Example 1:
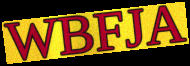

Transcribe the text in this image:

WBFJA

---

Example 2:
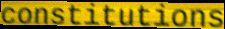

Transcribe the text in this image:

constitutions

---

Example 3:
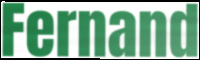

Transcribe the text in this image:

Fernand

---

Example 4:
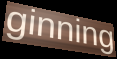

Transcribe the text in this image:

ginning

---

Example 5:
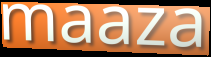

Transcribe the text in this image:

maaza